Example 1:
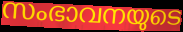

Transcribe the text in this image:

സംഭാവനയുടെ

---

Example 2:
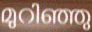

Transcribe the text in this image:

മുറിഞ്ഞു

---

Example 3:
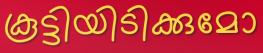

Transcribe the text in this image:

കൂട്ടിയിടിക്കുമോ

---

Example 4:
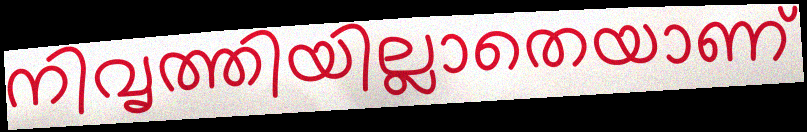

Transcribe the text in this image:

നിവൃത്തിയില്ലാതെയാണ്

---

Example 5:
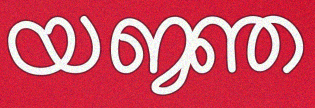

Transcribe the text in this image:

യജ്ഞ